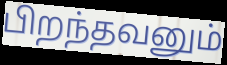
பிறந்தவனும்